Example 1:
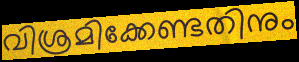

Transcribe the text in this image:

വിശ്രമിക്കേണ്ടതിനും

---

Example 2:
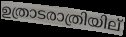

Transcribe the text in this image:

ഉത്രാടരാത്രിയില്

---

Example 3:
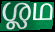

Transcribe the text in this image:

ശ്ലഥ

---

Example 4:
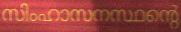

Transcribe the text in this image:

സിംഹാസനസ്ഥന്റെ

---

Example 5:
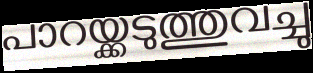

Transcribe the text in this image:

പാറയ്ക്കടുത്തുവച്ചു